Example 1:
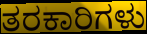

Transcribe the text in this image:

ತರಕಾರಿಗಳು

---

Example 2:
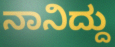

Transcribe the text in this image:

ನಾನಿದ್ದು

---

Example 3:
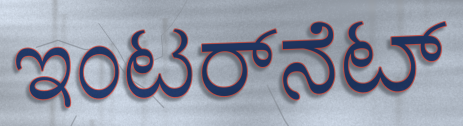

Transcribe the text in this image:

ಇಂಟರ್‌ನೆಟ್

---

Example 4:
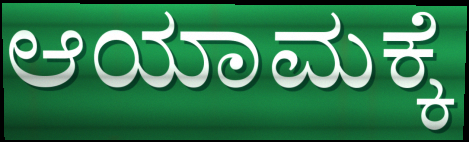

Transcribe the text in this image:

ಆಯಾಮಕ್ಕೆ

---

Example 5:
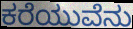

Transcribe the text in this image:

ಕರೆಯುವೆನು